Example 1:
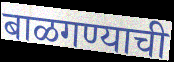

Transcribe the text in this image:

बाळगण्याची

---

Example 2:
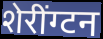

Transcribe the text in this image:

शेरींग्टन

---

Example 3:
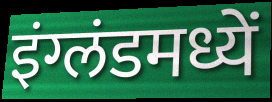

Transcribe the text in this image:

इंग्लंडमध्यें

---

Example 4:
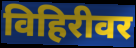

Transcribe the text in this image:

विहिरीवर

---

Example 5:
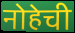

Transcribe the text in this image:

नोहेची